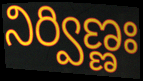
నిర్విణ్ణః